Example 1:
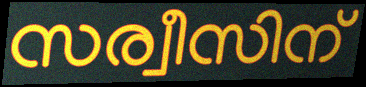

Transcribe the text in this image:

സര്വീസിന്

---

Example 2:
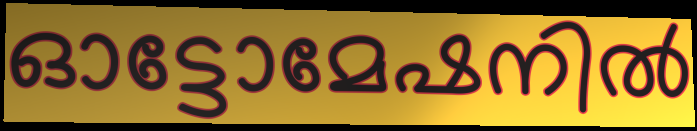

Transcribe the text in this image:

ഓട്ടോമേഷനിൽ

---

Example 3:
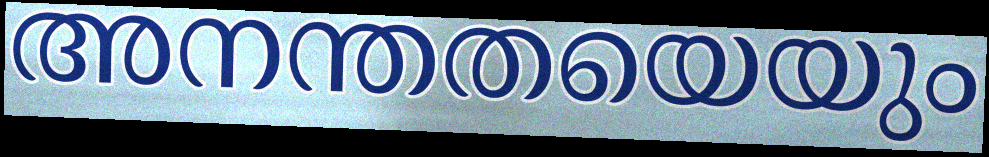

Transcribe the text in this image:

അനന്തതയെയും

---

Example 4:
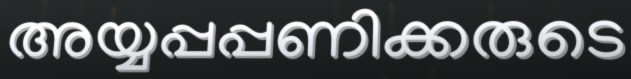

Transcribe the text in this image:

അയ്യപ്പപ്പണിക്കരുടെ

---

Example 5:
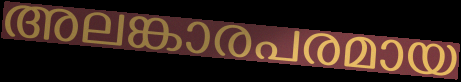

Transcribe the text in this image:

അലങ്കാരപരമായ